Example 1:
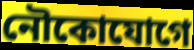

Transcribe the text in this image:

নৌকোযোগে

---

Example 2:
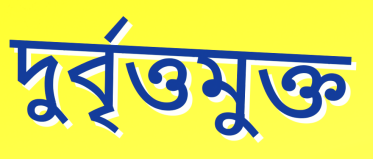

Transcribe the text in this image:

দুর্বৃত্তমুক্ত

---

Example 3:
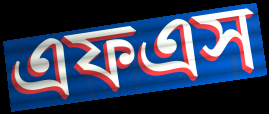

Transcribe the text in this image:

এফএস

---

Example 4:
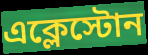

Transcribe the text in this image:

এক্লেস্টোন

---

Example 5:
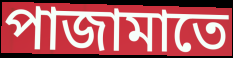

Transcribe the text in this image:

পাজামাতে